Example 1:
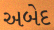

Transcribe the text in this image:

અબેદ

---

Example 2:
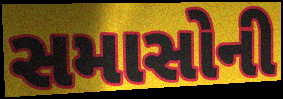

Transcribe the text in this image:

સમાસોની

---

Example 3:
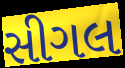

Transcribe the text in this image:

સીગલ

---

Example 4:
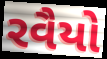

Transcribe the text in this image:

રવૈયો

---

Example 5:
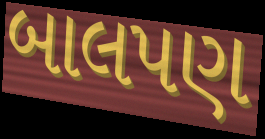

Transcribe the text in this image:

બાલપણ